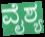
ವೈಶ್ಯ